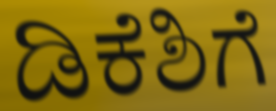
ಡಿಕೆಶಿಗೆ